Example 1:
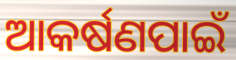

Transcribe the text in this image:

ଆକର୍ଷଣପାଇଁ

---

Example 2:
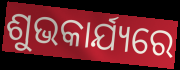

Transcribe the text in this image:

ଶୁଭକାର୍ଯ୍ୟରେ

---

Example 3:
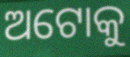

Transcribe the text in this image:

ଅଟୋକୁ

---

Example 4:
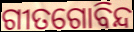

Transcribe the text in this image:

ଗୀତଗୋବିନ୍ଦ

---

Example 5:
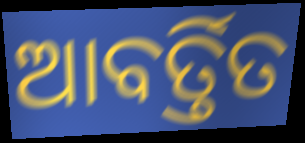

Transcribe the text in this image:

ଆବର୍ତ୍ତିତ